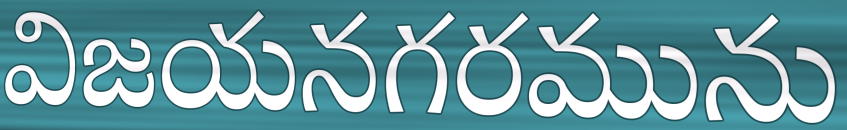
విజయనగరమును